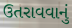
ઉતરાવવાનું